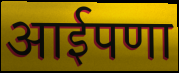
आईपणा